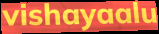
vishayaalu